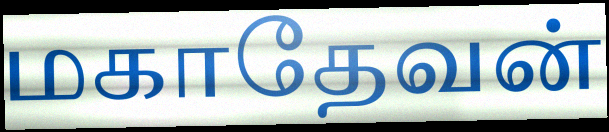
மகாதேவன்